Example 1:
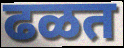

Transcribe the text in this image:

ढळत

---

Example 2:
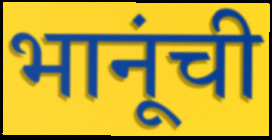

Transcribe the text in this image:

भानूंची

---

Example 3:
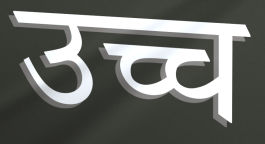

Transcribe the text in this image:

उच्च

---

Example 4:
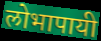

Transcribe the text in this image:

लोभापायी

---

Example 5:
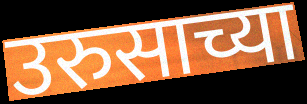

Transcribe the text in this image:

उरुसाच्या